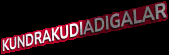
KUNDRAKUDIADIGALAR